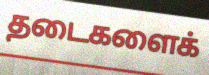
தடைகளைக்